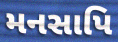
મનસાપિ